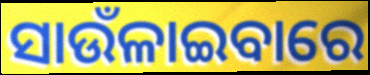
ସାଉଁଳାଇବାରେ